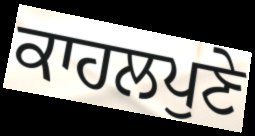
ਕਾਹਲਪੁਣੇ